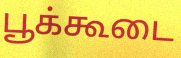
பூக்கூடை